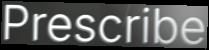
Prescribe